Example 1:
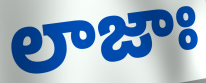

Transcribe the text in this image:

లాజాః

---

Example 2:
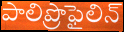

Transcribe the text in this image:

పాలిప్రొఫైలిన్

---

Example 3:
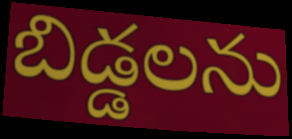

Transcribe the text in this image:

బిడ్డలను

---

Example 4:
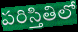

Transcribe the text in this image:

పరిస్తితిలో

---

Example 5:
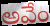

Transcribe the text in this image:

అవేం